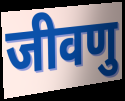
जीवणु